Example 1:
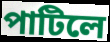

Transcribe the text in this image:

পাটিলে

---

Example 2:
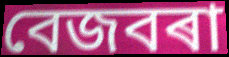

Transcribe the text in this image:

বেজবৰা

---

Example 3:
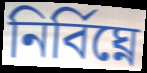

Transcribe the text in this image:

নিৰ্বিঘ্নে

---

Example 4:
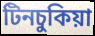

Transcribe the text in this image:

টিনচুকিয়া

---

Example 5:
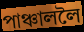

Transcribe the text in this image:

পাঞ্চাললৈ